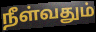
நீள்வதும்